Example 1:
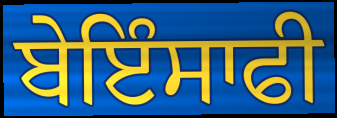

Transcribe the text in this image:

ਬੇਇੰਸਾਫੀ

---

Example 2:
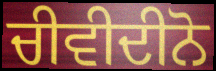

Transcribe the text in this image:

ਚੀਵੀਦੀਨੋ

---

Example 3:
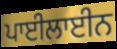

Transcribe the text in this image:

ਪਾਈਲਾਈਨ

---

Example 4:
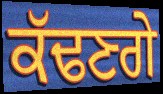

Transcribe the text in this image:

ਕੱਢਣਗੇ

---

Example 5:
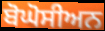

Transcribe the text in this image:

ਬੋਘੋਸੀਅਨ